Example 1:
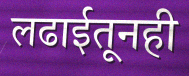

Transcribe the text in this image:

लढाईतूनही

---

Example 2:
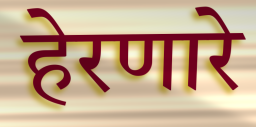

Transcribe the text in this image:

हेरणारे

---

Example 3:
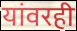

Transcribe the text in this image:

यांवरही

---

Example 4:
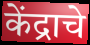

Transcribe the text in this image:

केंद्राचे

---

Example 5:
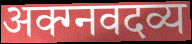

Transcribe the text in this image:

अक्ग्नवदव्य